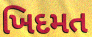
ખિદમત